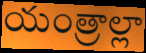
యంత్రాల్లా